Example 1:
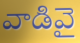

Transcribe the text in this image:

వాడివై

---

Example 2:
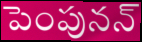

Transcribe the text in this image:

పెంపునన్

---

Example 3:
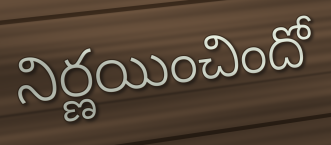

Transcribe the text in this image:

నిర్ణయించిందో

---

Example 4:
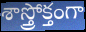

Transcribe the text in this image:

శాస్త్రోక్తంగా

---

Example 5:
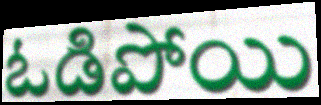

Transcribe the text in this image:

ఓడిపోయి